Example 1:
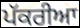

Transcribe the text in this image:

ਪੱਕਰੀਆ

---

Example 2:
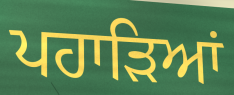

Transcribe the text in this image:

ਪਹਾੜਿਆਂ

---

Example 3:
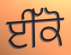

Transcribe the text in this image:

ਈੱਕੋ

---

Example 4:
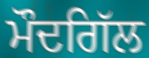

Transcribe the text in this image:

ਮੌਦਗਿੱਲ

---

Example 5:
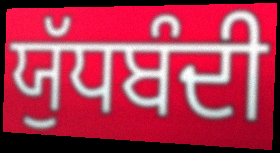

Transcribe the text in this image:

ਯੁੱਧਬੰਦੀ